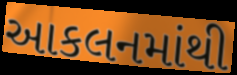
આકલનમાંથી